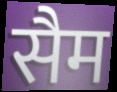
सैम